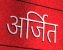
अर्जित